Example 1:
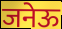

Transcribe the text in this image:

जनेऊ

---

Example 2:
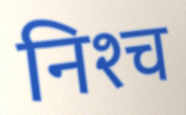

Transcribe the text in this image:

निश्च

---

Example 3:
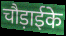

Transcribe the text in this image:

चौड़ाईके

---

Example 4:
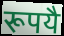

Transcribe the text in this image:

रूपयै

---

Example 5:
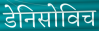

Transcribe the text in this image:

डेनिसोविच